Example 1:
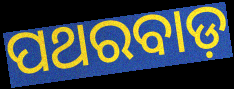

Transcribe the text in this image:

ପଥରବାଡ଼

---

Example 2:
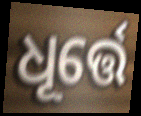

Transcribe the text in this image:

ଧୂର୍ତ୍ତେ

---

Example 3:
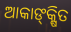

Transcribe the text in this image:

ଆକାଙ୍‍କ୍ଷିତ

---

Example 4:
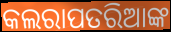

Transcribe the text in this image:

କଲରାପତରିଆଙ୍କ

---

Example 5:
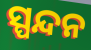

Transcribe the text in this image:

ସ୍ପନ୍ଦନ